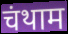
चंथाम